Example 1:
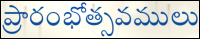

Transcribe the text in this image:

ప్రారంభోత్సవములు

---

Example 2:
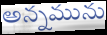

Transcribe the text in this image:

అన్నమును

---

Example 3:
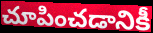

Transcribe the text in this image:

చూపించడానికీ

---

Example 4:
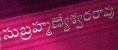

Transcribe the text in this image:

సుబ్రహ్మణ్యేశ్వరరావు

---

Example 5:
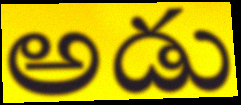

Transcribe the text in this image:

అడు